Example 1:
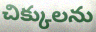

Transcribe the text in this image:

చిక్కులను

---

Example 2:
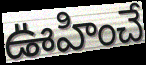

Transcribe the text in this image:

ఊహించే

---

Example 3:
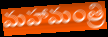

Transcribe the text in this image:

మహామంత్రి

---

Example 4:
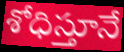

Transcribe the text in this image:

శోధిస్తూనే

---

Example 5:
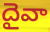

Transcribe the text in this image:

దైవా